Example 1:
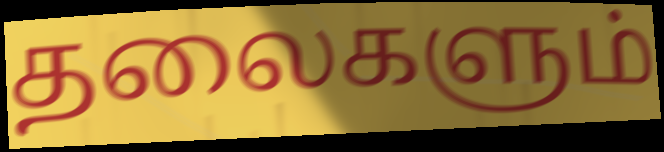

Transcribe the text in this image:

தலைகளும்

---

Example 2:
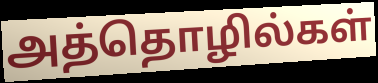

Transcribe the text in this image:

அத்தொழில்கள்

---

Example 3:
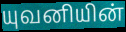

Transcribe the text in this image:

யுவனியின்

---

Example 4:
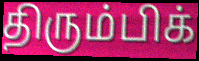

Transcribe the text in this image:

திரும்பிக்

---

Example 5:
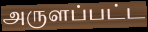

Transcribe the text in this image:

அருளப்பட்ட